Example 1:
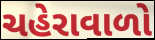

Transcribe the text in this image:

ચહેરાવાળો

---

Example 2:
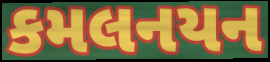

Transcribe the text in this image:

કમલનયન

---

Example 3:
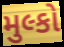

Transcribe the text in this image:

મુલ્કો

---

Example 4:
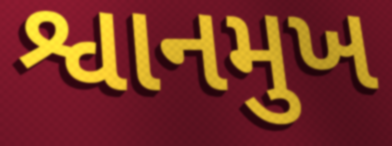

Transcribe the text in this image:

શ્વાનમુખ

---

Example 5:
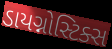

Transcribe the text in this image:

ડાયગ્નોસ્ટિક્સ